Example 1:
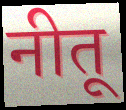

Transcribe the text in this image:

नीतू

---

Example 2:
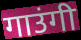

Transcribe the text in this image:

गाउंगी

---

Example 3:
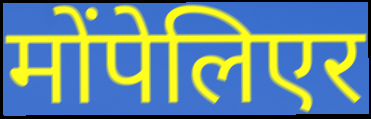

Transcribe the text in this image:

मोंपेलिएर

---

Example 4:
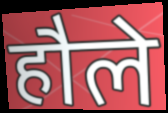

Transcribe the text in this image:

हौले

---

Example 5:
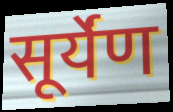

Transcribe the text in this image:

सूर्ये॑ण